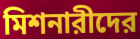
মিশনারীদের